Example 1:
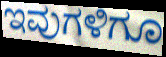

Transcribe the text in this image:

ಇವುಗಳಿಗೂ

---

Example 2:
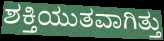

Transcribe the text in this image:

ಶಕ್ತಿಯುತವಾಗಿತ್ತು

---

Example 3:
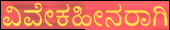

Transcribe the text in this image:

ವಿವೇಕಹೀನರಾಗಿ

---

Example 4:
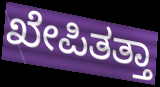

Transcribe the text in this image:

ಖೇಪಿತತ್ತಾ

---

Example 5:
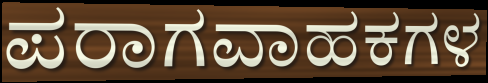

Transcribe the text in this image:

ಪರಾಗವಾಹಕಗಳ